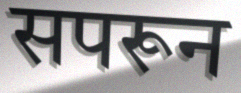
सपरून